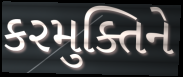
કરમુક્તિને